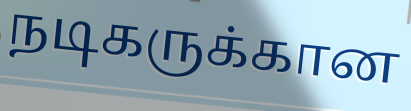
நடிகருக்கான